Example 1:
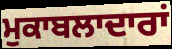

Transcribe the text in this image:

ਮੁਕਾਬਲਾਦਾਰਾਂ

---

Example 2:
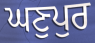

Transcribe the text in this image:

ਘਣੁਪੁਰ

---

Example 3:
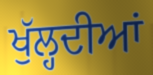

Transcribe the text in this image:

ਖੁੱਲ੍ਹਦੀਆਂ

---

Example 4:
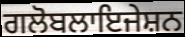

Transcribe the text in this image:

ਗਲੋਬਲਾਇਜੇਸ਼ਨ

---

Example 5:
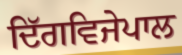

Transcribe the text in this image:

ਦਿੱਗਵਿਜੇਪਾਲ